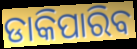
ଡାକିପାରିବ